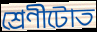
শ্ৰেণীটোত